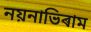
নয়নাভিৰাম